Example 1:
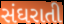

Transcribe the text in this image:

સંઘરાતી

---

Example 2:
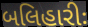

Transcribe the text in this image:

બલિહારીઃ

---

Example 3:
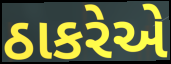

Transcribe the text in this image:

ઠાકરેએ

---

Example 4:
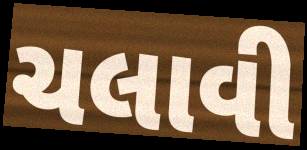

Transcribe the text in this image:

ચલાવી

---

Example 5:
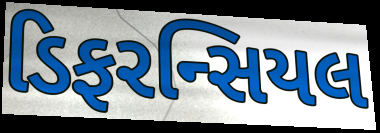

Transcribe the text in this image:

ડિફરન્સિયલ